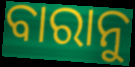
ବାରାନୁ